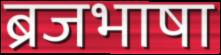
ब्रजभाषा